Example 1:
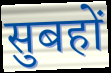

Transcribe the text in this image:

सुबहों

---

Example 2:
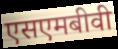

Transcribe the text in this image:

एसएमबीवी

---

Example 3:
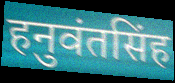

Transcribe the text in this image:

हनुवंतसिंह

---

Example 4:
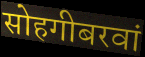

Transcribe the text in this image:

सोहगीबरवां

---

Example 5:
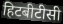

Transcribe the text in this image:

हिटबीटीसी